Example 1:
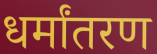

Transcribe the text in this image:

धर्मांतरण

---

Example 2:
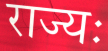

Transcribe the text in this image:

राज्यः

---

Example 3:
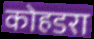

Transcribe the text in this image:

कोहडरा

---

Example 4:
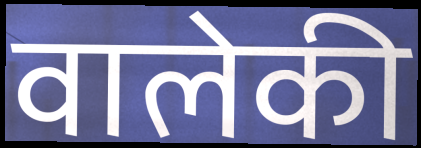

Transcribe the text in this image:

वालेकी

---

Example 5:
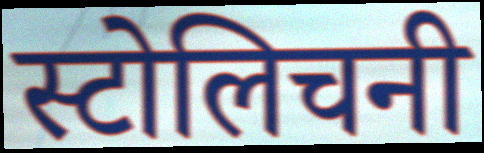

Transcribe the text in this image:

स्टोलिचनी